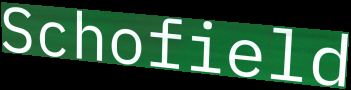
Schofield